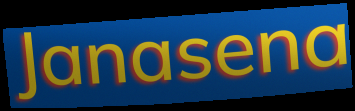
Janasena